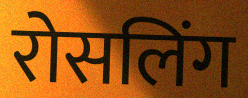
रोसलिंग